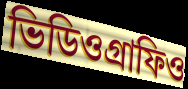
ভিডিওগ্রাফিও